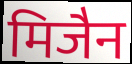
मिजैन